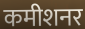
कमीशनर